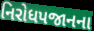
નિરોધપજાનના